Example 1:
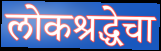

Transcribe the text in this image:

लोकश्रद्धेचा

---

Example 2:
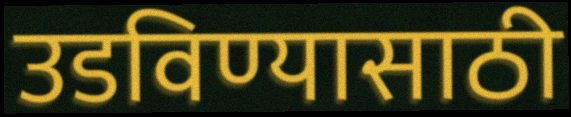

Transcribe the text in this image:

उडविण्यासाठी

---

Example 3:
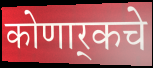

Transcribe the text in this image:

कोणार्कचे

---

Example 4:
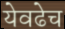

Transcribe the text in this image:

येवढेच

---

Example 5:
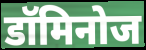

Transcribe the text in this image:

डॉमिनोज